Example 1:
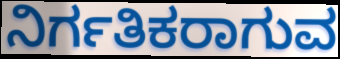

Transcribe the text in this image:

ನಿರ್ಗತಿಕರಾಗುವ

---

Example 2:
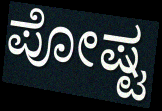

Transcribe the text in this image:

ಪೋಷ್ಟ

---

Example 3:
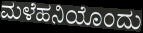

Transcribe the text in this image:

ಮಳೆಹನಿಯೊಂದು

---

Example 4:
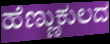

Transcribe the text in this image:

ಹೆಣ್ಣುಕುಲದ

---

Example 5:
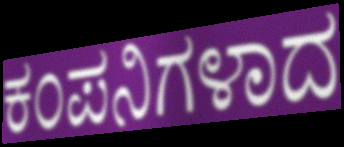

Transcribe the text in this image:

ಕಂಪನಿಗಳಾದ